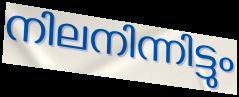
നിലനിന്നിട്ടും